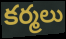
కర్మలు